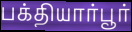
பக்தியார்பூர்